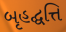
બૃહદ્ઘત્તિ